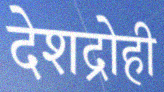
देशद्रोही